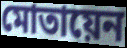
মোতায়েন